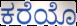
ಕರೆಯೊ